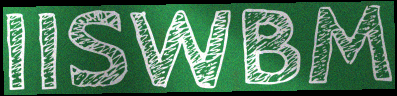
IISWBM